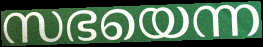
സഭയെന്ന